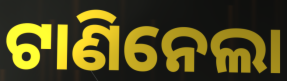
ଟାଣିନେଲା